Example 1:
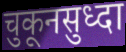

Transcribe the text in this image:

चुकूनसुध्दा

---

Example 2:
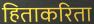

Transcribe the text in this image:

हिताकरिता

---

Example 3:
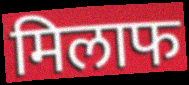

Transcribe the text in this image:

मिलाफ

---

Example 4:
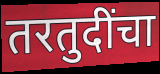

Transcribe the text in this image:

तरतुदींचा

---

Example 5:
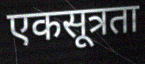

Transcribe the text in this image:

एकसूत्रता